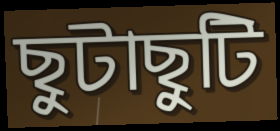
ছুটাছুটি